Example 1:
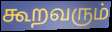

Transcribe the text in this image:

கூறவரும்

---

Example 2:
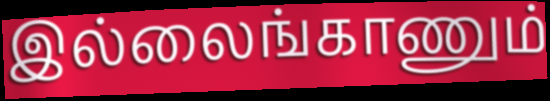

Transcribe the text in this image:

இல்லைங்காணும்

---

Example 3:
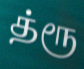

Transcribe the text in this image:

த்ரூ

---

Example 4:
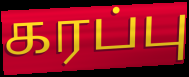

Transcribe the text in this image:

கரப்பு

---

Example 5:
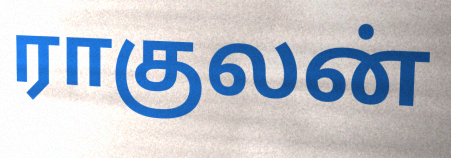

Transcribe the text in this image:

ராகுலன்